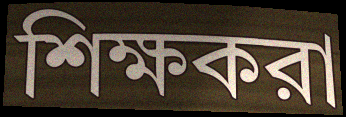
শিক্ষকরা